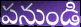
పనుండి